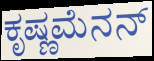
ಕೃಷ್ಣಮೆನನ್